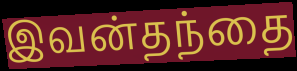
இவன்தந்தை